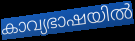
കാവ്യഭാഷയിൽ